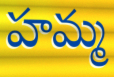
హమ్మ